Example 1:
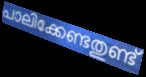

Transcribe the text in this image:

പാലിക്കേണ്ടതുണ്ട്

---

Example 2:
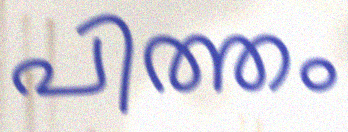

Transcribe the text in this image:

പിത്തം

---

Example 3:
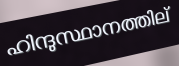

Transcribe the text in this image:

ഹിന്ദുസ്ഥാനത്തില്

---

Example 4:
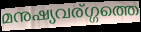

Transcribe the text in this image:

മനുഷ്യവര്ഗ്ഗത്തെ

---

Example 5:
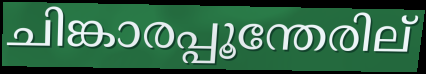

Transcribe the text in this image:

ചിങ്കാരപ്പൂന്തേരില്